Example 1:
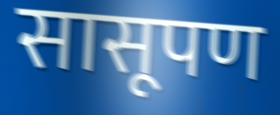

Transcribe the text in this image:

सासूपण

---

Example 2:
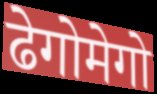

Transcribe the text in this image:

ढेगोमेगो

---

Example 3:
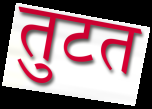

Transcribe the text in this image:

तुटत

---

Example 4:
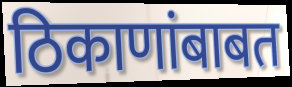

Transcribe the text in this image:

ठिकाणांबाबत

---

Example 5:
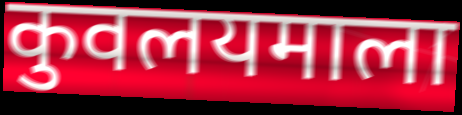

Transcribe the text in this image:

कुवलयमाला